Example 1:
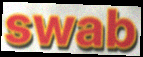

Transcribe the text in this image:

swab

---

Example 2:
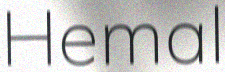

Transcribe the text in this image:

Hemal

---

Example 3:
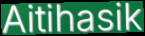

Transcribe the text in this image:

Aitihasik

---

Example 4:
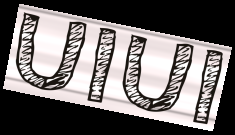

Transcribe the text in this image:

UIUI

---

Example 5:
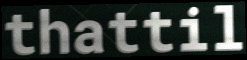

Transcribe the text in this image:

thattil